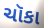
ચૉકા